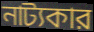
নাট্যকার